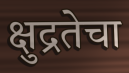
क्षुद्रतेचा